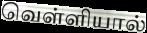
வெள்ளியால்